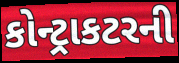
કોન્ટ્રાકટરની